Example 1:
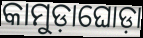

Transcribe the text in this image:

କାମୁଡ଼ାଘୋଡ଼ା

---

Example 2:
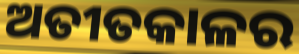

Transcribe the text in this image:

ଅତୀତକାଳର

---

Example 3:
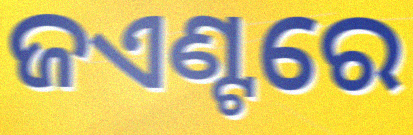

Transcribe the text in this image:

ଜଏଣ୍ଟରେ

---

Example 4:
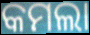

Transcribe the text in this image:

କମଲା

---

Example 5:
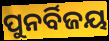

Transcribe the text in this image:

ପୁନର୍ବିଜୟ